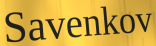
Savenkov